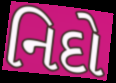
નિદો